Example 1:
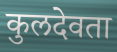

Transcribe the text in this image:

कुलदेवता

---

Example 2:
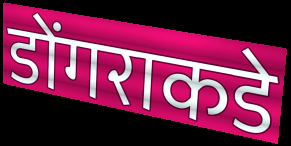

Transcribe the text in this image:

डोंगराकडे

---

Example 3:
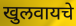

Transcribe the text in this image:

खुलवायचे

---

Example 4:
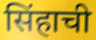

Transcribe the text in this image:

सिंहाची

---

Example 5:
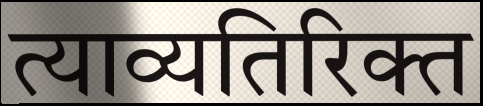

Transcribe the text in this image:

त्याव्यतिरिक्त